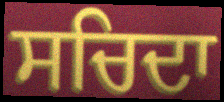
ਸਚਿਦਾ